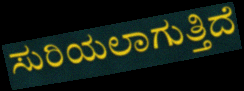
ಸುರಿಯಲಾಗುತ್ತಿದೆ